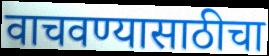
वाचवण्यासाठीचा